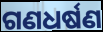
ଗଣଧର୍ଷଣ